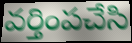
వర్తింపచేసి